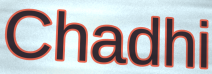
Chadhi